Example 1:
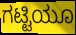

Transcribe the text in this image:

ಗಟ್ಟಿಯೂ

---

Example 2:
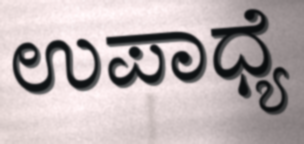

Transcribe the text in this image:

ಉಪಾಧ್ಯೆ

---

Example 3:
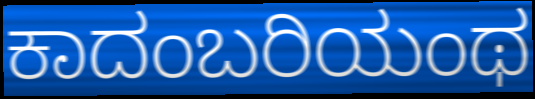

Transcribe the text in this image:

ಕಾದಂಬರಿಯಂಥ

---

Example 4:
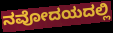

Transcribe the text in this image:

ನವೋದಯದಲ್ಲಿ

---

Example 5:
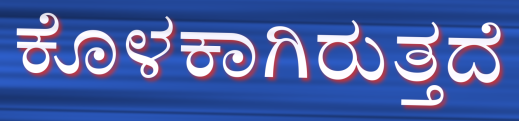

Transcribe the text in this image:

ಕೊಳಕಾಗಿರುತ್ತದೆ